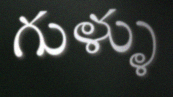
గుళ్ళు